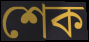
শেক